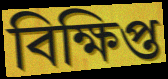
বিক্ষিপ্ত